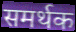
समर्थक